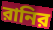
রানির